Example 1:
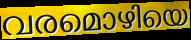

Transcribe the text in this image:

വരമൊഴിയെ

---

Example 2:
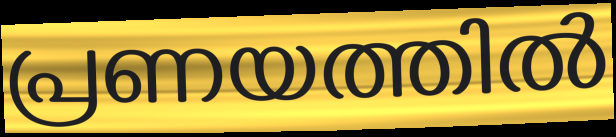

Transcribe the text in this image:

പ്രണയത്തിൽ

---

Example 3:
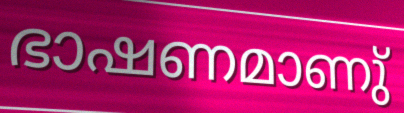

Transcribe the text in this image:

ഭാഷണമാണു്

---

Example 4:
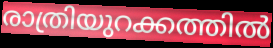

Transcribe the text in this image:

രാത്രിയുറക്കത്തിൽ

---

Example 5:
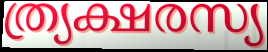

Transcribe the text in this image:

ത്ര്യക്ഷരസ്യ